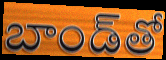
బాండ్‌తో